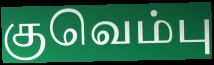
குவெம்பு